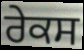
ਰੇਕਸ